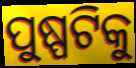
ପୁଷ୍ପଟିକୁ